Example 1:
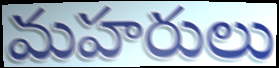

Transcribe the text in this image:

మహరులు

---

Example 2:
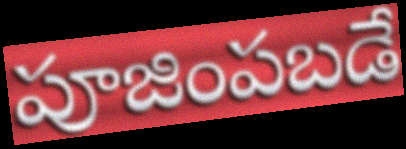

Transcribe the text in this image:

పూజింపబడే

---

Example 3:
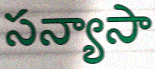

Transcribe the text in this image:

సన్యాసా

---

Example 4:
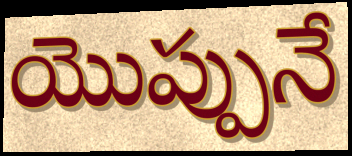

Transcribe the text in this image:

యొప్పునే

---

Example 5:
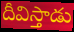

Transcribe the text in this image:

దీవిస్తాడు